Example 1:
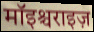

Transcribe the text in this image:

मॉइश्चराइज़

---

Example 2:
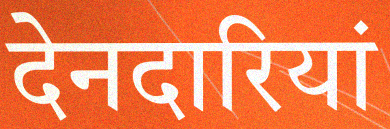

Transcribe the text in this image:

देनदारियां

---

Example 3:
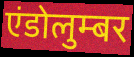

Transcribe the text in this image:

एंडोलुम्बर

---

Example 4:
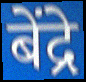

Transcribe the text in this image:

बेंद्रे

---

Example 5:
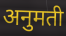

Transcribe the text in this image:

अनुमती